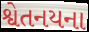
શ્વેતનયના